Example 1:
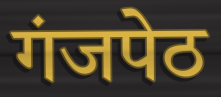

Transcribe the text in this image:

गंजपेठ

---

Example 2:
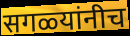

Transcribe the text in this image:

सगळ्यांनीच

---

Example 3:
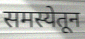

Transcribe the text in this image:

समस्येतून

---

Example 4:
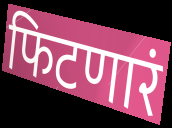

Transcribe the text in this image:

फिटणारं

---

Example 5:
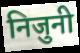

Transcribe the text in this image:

निजुनी